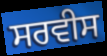
ਸਰਵੀਸ